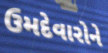
ઉમદેવારોને